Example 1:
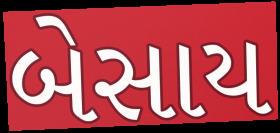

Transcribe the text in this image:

બેસાય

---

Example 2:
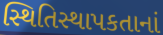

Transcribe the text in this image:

સ્થિતિસ્થાપકતાનાં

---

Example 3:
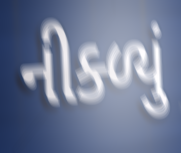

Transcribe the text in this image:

નીક્ળ્યું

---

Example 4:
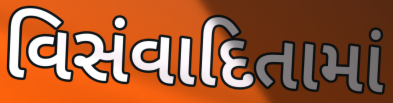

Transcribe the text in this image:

વિસંવાદિતામાં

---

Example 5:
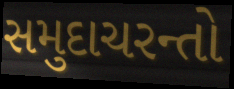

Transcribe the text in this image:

સમુદાચરન્તો